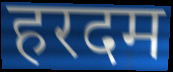
हरदम